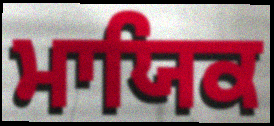
ਮਾਯਿਕ